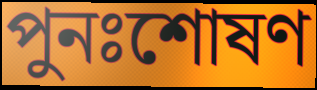
পুনঃশোষণ